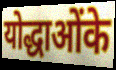
योद्धाओंके